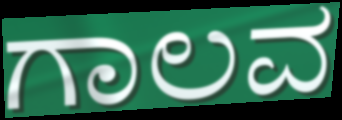
ಗಾಲವ